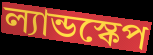
ল্যান্ডস্কেপ